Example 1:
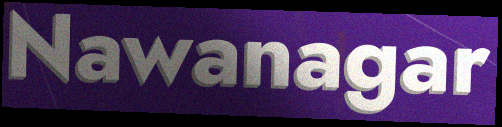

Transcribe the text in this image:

Nawanagar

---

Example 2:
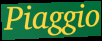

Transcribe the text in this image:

Piaggio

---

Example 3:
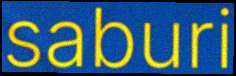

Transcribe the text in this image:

saburi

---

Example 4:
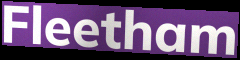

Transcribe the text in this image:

Fleetham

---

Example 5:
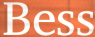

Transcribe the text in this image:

Bess